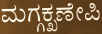
ಮಗ್ಗಕ್ಖಣೇಪಿ